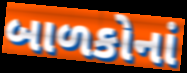
બાળકોનાં